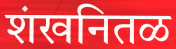
शंखनितळ